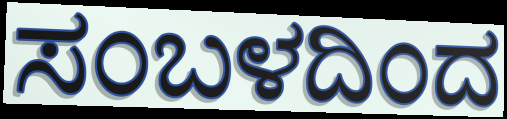
ಸಂಬಳದಿಂದ